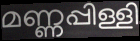
മണ്ണപ്പിള്ളി